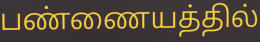
பண்ணையத்தில்